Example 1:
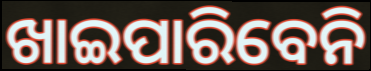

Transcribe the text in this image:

ଖାଇପାରିବେନି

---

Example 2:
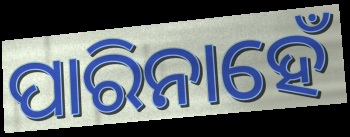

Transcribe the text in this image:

ପାରିନାହେଁ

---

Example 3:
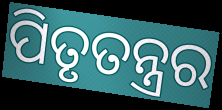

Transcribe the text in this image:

ପିତୃତନ୍ତ୍ରର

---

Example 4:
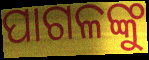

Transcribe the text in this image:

ପାଗଳଙ୍କୁ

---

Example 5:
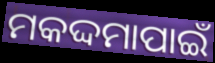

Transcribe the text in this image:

ମକଦ୍ଦମାପାଇଁ